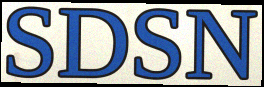
SDSN